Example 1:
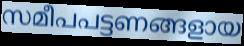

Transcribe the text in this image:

സമീപപട്ടണങ്ങളായ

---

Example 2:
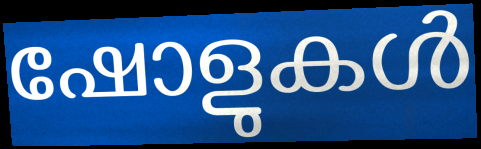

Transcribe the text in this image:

ഷോളുകൾ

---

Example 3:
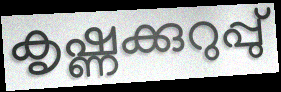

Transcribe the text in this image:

കൃഷ്ണക്കുറുപ്പു്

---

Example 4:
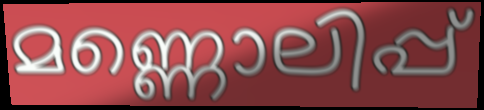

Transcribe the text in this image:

മണ്ണൊലിപ്പ്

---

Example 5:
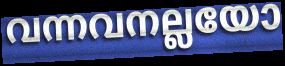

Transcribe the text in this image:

വന്നവനല്ലയോ